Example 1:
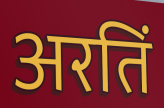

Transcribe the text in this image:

अरतिं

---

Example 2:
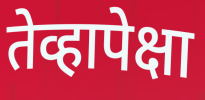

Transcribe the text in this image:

तेव्हापेक्षा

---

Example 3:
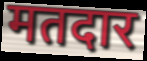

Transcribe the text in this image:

मतदार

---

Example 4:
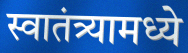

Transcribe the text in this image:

स्वातंत्र्यामध्ये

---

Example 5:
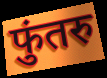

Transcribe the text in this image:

फुंतरु